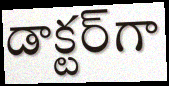
డాక్టర్‌గా